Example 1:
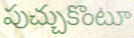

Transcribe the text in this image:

పుచ్చుకొంటూ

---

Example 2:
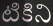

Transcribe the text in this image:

టికిని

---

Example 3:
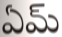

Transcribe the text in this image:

ఏమ్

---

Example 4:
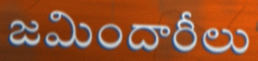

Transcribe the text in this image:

జమిందారీలు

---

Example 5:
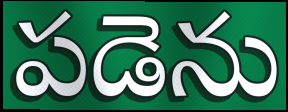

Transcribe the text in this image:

పడెను